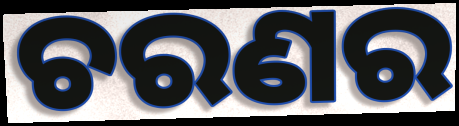
ଚରଣର